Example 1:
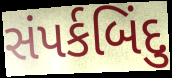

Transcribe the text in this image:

સંપર્કબિંદુ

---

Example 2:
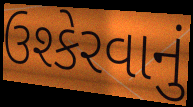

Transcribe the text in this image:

ઉશ્કેરવાનું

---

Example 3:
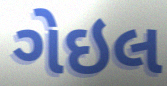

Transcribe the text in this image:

ગેઇલ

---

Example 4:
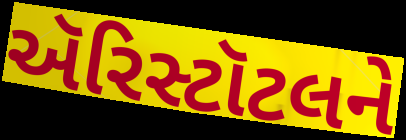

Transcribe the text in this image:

ઍરિસ્ટૉટલને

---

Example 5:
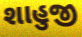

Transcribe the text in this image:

શાહુજી